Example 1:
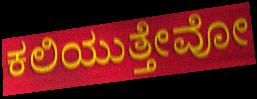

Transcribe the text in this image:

ಕಲಿಯುತ್ತೇವೋ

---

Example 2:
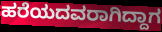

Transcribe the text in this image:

ಹರೆಯದವರಾಗಿದ್ದಾಗ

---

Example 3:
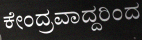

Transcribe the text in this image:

ಕೇಂದ್ರವಾದ್ದರಿಂದ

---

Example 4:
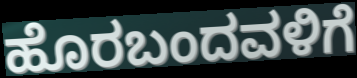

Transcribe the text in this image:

ಹೊರಬಂದವಳಿಗೆ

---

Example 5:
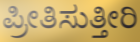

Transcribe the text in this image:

ಪ್ರೀತಿಸುತ್ತೀರಿ